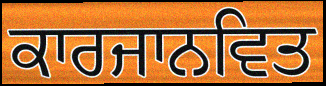
ਕਾਰਜਾਨਵਿਤ